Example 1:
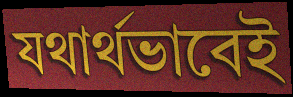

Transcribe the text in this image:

যথার্থভাবেই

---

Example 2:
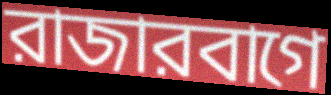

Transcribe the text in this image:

রাজারবাগে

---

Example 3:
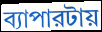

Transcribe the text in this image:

ব্যাপারটায়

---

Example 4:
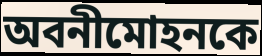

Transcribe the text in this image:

অবনীমোহনকে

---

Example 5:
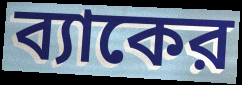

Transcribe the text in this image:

ব্যাকের